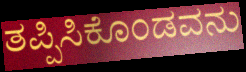
ತಪ್ಪಿಸಿಕೊಂಡವನು